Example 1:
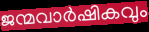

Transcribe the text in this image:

ജന്മവാർഷികവും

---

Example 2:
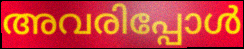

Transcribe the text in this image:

അവരിപ്പോൾ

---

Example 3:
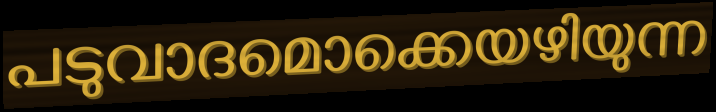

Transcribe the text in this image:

പടുവാദമൊക്കെയഴിയുന്ന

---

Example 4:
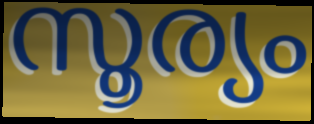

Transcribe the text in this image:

സൂര്യം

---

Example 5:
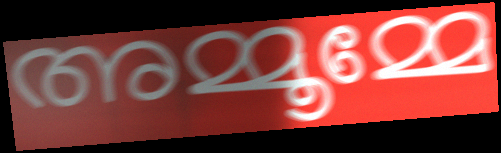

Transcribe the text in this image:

അമ്മൂമ്മേ